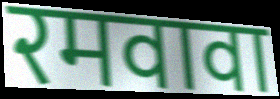
रमवावा